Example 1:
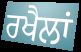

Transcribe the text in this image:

ਰਖੈਲਾਂ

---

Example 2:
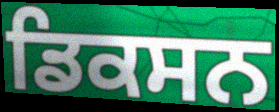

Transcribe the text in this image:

ਡਿਕਸਨ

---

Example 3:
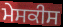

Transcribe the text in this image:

ਮੇਸਕੀਸ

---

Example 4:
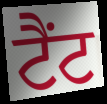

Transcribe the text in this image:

ਟੈਂਟ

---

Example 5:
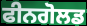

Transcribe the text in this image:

ਫੀਨਗੋਲਡ